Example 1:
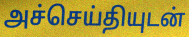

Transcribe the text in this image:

அச்செய்தியுடன்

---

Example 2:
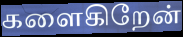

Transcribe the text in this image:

களைகிறேன்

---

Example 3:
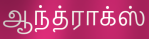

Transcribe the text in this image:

ஆந்த்ராக்ஸ்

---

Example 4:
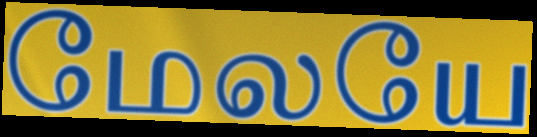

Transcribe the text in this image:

மேலயே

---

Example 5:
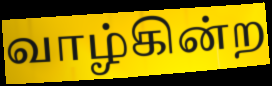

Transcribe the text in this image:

வாழ்கின்ற